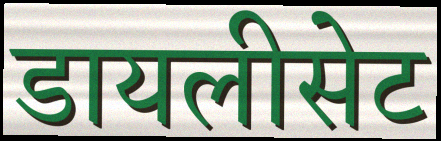
डायलीसेट